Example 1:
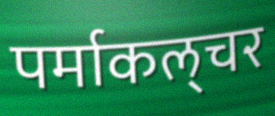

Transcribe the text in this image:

पर्माकल्चर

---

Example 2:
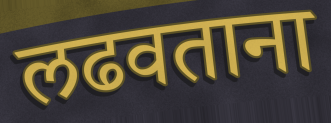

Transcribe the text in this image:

लढवताना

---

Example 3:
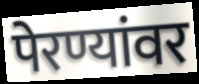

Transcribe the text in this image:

पेरण्यांवर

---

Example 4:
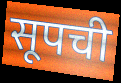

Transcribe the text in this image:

सूपची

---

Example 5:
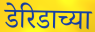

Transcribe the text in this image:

डेरिडाच्या